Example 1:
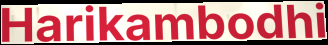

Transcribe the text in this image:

Harikambodhi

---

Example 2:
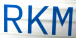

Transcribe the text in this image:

RKM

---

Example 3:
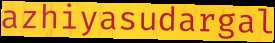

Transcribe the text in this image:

azhiyasudargal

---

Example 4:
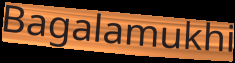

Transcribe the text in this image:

Bagalamukhi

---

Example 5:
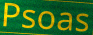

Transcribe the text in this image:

Psoas